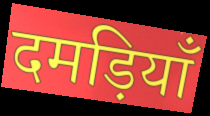
दमड़ियाँ